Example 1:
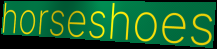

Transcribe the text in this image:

horseshoes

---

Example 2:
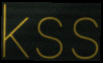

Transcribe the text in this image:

kss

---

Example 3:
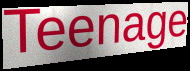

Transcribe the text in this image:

Teenage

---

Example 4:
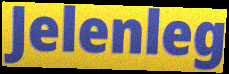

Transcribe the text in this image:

Jelenleg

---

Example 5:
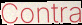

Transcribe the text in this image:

Contra